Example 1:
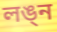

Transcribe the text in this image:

লঙ্ন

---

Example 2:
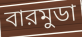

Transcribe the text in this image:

বারমুডা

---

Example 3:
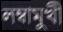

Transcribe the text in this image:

লম্বামুখী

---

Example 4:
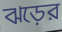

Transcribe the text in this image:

ঝড়ের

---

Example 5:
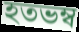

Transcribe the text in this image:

হতভম্ব